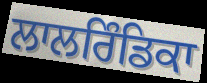
ਲਾਲਰਿੰਡਿਕਾ